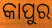
କାପୁର